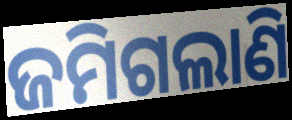
ଜମିଗଲାଣି